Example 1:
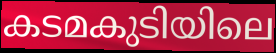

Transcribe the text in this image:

കടമകുടിയിലെ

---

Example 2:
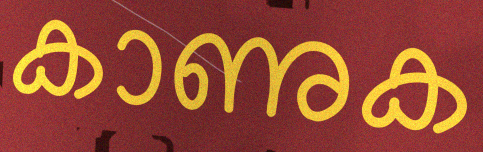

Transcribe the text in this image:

കാണുക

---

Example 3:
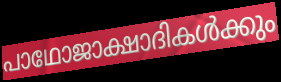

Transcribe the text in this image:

പാഥോജാക്ഷാദികൾക്കും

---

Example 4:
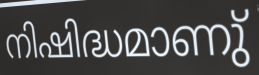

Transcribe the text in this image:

നിഷിദ്ധമാണു്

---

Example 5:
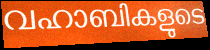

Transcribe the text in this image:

വഹാബികളുടെ